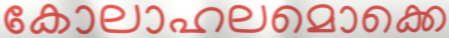
കോലാഹലമൊക്കെ